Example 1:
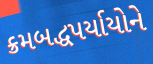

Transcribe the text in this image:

ક્રમબદ્ધપર્યાયોને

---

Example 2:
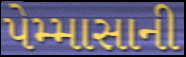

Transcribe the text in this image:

પેમ્માસાની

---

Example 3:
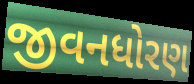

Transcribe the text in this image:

જીવનધોરણ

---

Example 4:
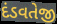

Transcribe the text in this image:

દંડવતેજી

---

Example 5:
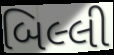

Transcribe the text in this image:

બિલ્લી